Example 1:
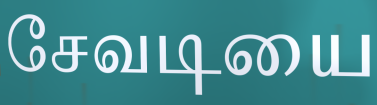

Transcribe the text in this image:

சேவடியை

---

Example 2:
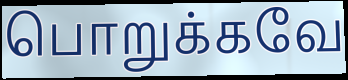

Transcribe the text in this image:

பொறுக்கவே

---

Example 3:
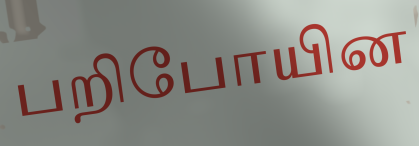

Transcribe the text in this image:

பறிபோயின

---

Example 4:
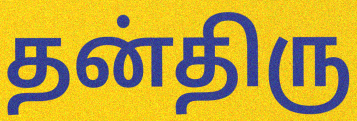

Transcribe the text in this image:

தன்திரு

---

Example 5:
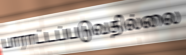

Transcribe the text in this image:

பாராட்டப்படுவதில்லை